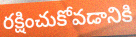
రక్షించుకోవడానికి